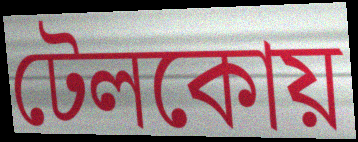
টেলকোয়